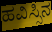
ಹವಿಸ್ಸಿನ